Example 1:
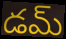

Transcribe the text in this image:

డమ్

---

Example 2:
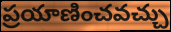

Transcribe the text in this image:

ప్రయాణించవచ్చు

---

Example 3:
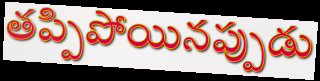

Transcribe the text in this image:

తప్పిపోయినప్పుడు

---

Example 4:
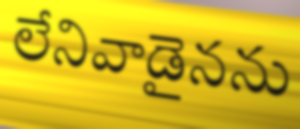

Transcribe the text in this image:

లేనివాడైనను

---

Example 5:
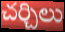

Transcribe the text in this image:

చర్చిలు